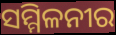
ସମ୍ମିଳନୀର